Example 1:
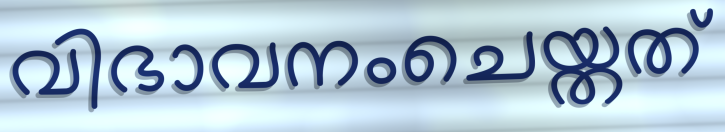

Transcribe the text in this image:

വിഭാവനംചെയ്തത്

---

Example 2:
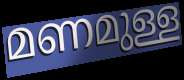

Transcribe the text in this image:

മണമുള്ള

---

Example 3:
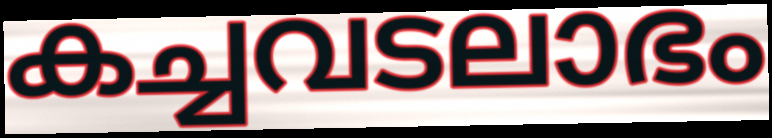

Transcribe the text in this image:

കച്ചവടലാഭം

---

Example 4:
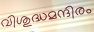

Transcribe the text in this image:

വിശുദ്ധമന്ദിരം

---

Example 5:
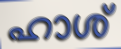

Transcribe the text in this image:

ഹാശ്